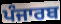
ਪੰਜਾਰਬ